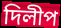
দিলীপ